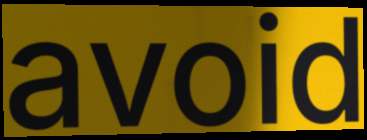
avoid